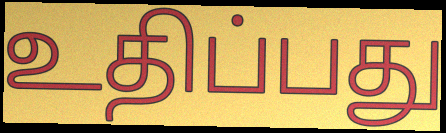
உதிப்பது